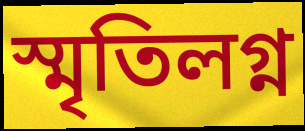
স্মৃতিলগ্ন